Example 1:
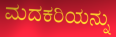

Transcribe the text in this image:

ಮದಕರಿಯನ್ನು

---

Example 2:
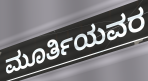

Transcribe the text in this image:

ಮೂರ್ತಿಯವರ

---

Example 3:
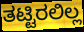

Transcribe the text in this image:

ತಟ್ಟಿರಲಿಲ್ಲ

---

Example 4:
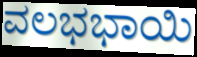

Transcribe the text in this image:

ವಲಭಭಾಯಿ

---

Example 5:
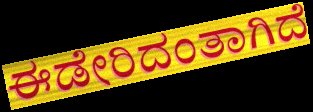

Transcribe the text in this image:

ಈಡೇರಿದಂತಾಗಿದೆ